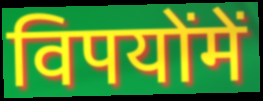
विपयोंमें